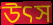
উৎস